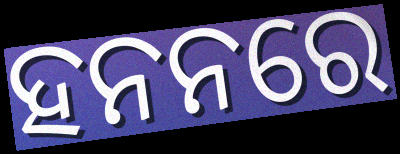
ହନନରେ